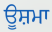
ਊਸ਼ਮਾ